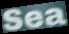
Sea